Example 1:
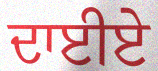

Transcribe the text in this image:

ਦਾਈਏ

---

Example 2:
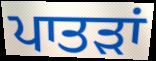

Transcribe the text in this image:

ਪਾਤੜਾਂ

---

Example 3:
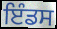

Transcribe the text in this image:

ਇੰਡਸ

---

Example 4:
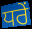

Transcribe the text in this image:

ਧਰੇਂ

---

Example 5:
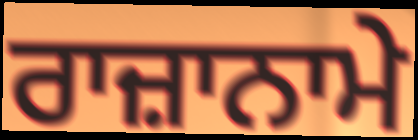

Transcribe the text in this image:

ਰਾਜ਼ਾਨਾਮੇ